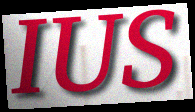
IUS